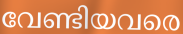
വേണ്ടിയവരെ